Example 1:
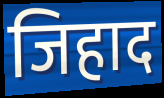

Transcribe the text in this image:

जिहाद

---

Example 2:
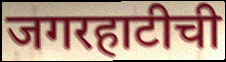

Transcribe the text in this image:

जगरहाटीची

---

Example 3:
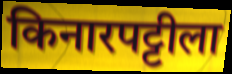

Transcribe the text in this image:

किनारपट्टीला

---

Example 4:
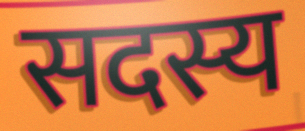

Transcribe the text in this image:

सदस्‍य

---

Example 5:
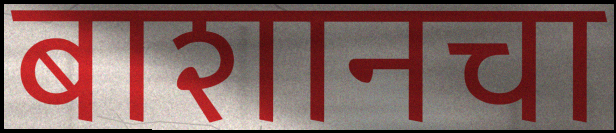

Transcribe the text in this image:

बाशानचा